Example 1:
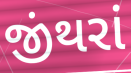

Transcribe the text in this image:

જીંથરાં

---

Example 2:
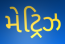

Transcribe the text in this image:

મેટ્રિઝ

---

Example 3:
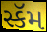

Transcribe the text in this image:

સ્કૅમ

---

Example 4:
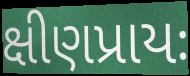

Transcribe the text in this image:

ક્ષીણપ્રાયઃ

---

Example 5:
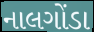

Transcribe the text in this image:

નાલગોંડા